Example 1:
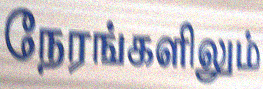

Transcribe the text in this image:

நேரங்களிலும்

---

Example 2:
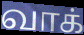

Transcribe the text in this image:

வாக்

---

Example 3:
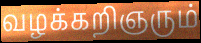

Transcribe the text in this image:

வழக்கறிஞரும்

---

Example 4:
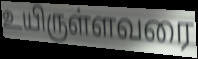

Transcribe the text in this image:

உயிருள்ளவரை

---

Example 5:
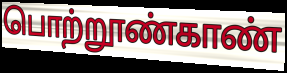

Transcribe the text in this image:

பொற்றூண்காண்